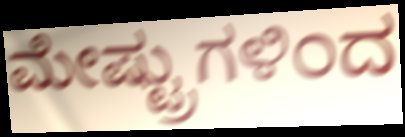
ಮೇಷ್ಟ್ರುಗಳಿಂದ